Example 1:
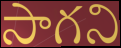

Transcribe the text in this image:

సాగని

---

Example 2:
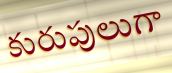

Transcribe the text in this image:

కురుపులుగా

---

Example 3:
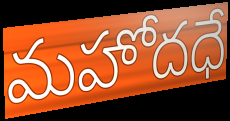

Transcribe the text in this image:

మహోదధే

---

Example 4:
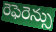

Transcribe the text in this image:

రెఫెరెన్సు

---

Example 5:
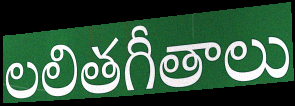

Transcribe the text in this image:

లలితగీతాలు